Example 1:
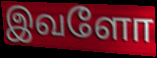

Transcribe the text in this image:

இவளோ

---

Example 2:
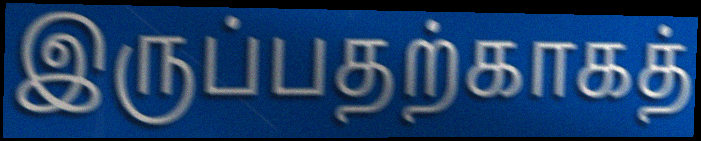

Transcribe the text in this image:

இருப்பதற்காகத்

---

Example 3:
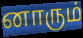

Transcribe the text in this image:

னாரும்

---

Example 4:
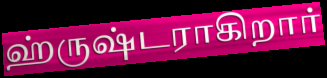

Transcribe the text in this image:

ஹ்ருஷ்டராகிறார்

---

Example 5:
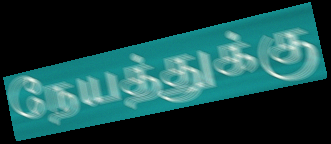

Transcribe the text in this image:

நேயத்துக்கு